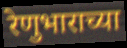
रेणुभाराच्या